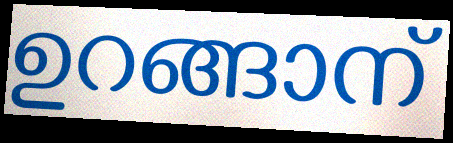
ഉറങ്ങാന്